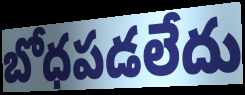
బోధపడలేదు